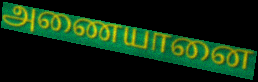
அணையானை